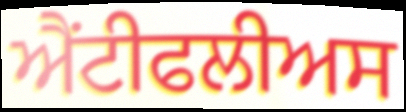
ਐਂਟੀਫਲੀਅਸ